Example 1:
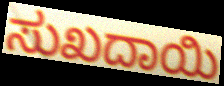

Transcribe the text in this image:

ಸುಖದಾಯಿ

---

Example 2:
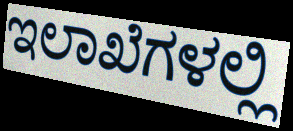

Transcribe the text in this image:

ಇಲಾಖೆಗಳಲ್ಲಿ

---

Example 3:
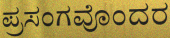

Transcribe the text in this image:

ಪ್ರಸಂಗವೊಂದರ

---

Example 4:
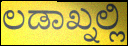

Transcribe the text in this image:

ಲಡಾಖ್ನಲ್ಲಿ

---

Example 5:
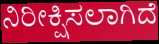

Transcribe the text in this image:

ನಿರೀಕ್ಷಿಸಲಾಗಿದೆ